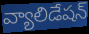
వ్యాలిడేషన్